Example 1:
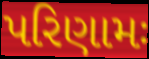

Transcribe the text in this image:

પરિણામઃ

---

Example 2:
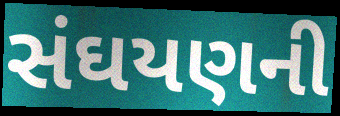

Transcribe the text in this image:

સંઘયણની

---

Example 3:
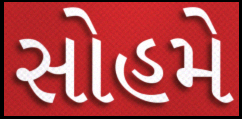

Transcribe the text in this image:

સોહમે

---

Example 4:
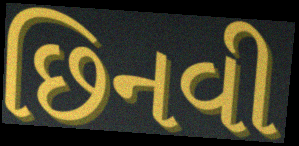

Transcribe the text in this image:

છિનવી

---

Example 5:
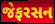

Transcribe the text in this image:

જેફરસન